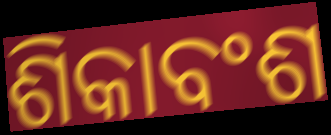
ଶିକାବଂଶ